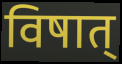
विषात्